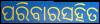
ପରିବାରସହିତ